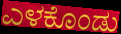
ಎಳಕೊಂಡು